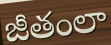
జీతంలా